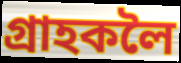
গ্ৰাহকলৈ